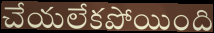
చేయలేకపోయింది